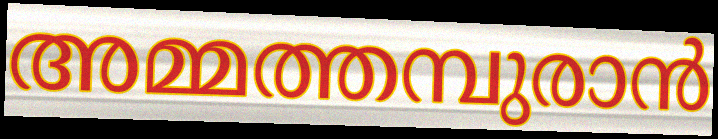
അമ്മത്തമ്പുരാൻ